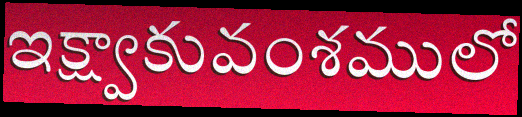
ఇక్ష్వాకువంశములో